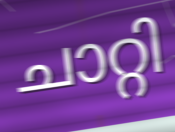
ചാറ്റി